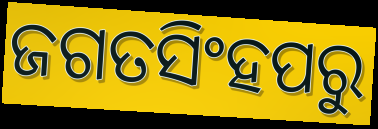
ଜଗତସିଂହପରୁ